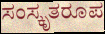
ಸಂಸ್ಕೃತರೂಪ